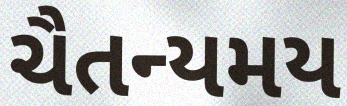
ચૈતન્યમય